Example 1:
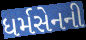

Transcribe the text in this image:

ધર્મસેનની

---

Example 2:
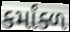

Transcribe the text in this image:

કર્માંક્ળ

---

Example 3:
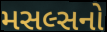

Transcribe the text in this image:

મસલ્સનો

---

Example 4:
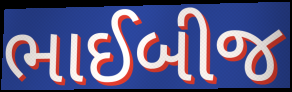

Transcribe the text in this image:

ભાઈબીજ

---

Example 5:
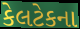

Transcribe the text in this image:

કેલટેકના